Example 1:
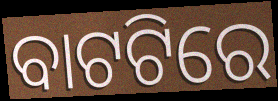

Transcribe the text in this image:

ବାଟଟିରେ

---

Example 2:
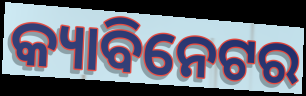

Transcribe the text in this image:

କ୍ୟାବିନେଟର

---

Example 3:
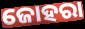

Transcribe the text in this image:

ଜୋହରା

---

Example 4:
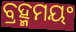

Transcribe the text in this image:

ବ୍ରହ୍ମମୟଂ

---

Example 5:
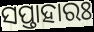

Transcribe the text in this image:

ସପ୍ତାହାରଃ